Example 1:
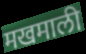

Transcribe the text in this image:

मखमाली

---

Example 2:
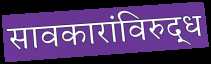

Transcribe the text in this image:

सावकारांविरुद्ध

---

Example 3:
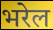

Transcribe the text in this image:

भरेल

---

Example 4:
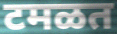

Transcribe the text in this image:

टमळत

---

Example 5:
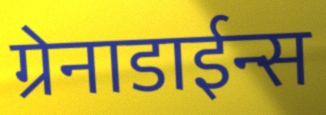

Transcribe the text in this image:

ग्रेनाडाईन्स